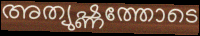
അത്യുഷ്ണത്തോടെ